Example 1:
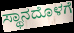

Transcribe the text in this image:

ಸ್ಥಾನದೊಳಗೆ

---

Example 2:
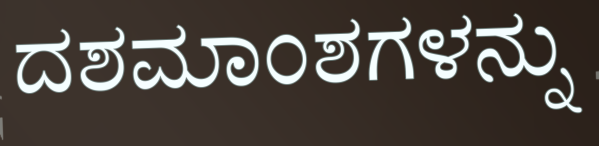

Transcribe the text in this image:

ದಶಮಾಂಶಗಳನ್ನು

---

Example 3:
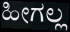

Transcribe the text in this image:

ಹೀಗಲ್ಲ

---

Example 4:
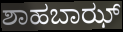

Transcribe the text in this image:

ಶಾಹಬಾಝ್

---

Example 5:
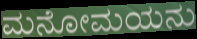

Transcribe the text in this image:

ಮನೋಮಯನು